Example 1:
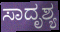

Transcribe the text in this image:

ಸಾದೃಶ್ಯ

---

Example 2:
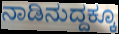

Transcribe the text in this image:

ನಾಡಿನುದ್ದಕ್ಕೂ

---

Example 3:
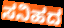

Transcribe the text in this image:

ಸನಿಹದ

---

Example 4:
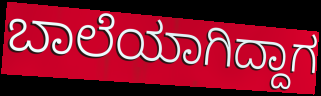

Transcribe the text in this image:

ಬಾಲೆಯಾಗಿದ್ದಾಗ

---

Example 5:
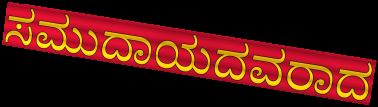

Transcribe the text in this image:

ಸಮುದಾಯದವರಾದ